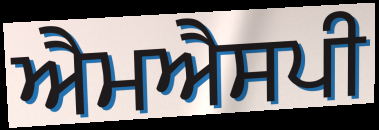
ਐਮਐਸਪੀ